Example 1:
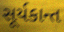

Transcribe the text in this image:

સૂર્યકાન્ત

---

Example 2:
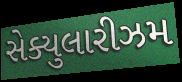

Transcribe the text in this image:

સેક્યુલારીઝમ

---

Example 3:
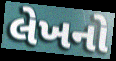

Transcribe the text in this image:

લેખનો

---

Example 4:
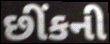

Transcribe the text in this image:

છીંકની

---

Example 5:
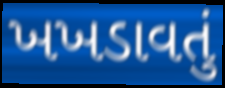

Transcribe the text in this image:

ખખડાવતું